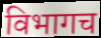
विभागच